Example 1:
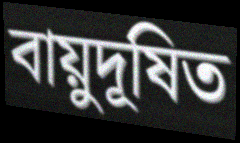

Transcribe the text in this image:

বায়ুদূষিত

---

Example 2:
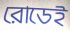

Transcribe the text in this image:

রোডেই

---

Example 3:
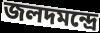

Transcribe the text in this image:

জলদমন্দ্রে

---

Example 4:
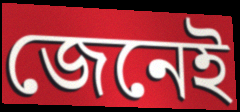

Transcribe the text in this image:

জেনেই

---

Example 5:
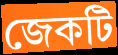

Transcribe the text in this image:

জেকটি